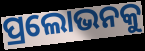
ପ୍ରଲୋଭନକୁ